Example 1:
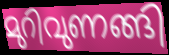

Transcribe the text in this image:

മുറിവുണങ്ങി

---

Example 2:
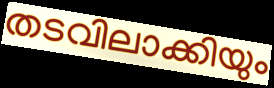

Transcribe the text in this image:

തടവിലാക്കിയും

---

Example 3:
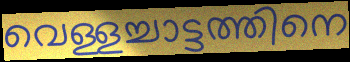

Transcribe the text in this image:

വെള്ളച്ചാട്ടത്തിനെ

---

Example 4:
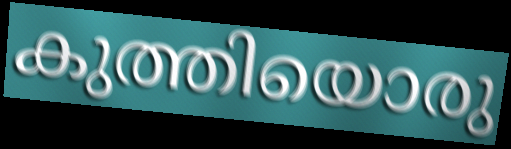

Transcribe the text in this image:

കുത്തിയൊരു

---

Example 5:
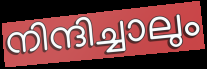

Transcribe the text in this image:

നിന്ദിച്ചാലും